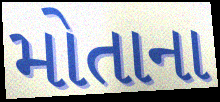
મોતાના